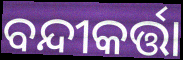
ବନ୍ଦୀକର୍ତ୍ତା